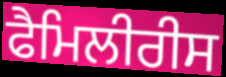
ਫੈਮਿਲੀਰੀਸ